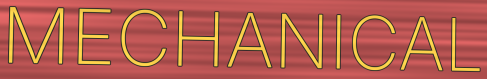
MECHANICAL